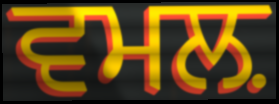
ਵਮਲ਼